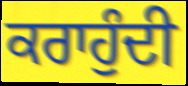
ਕਰਾਹੁੰਦੀ